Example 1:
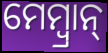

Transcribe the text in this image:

ମେମ୍ବ୍ରାନ୍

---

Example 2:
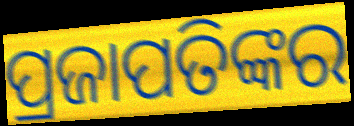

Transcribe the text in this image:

ପ୍ରଜାପତିଙ୍କର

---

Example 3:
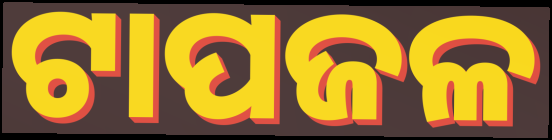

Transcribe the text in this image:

ଟାପଜଳ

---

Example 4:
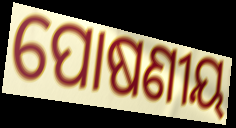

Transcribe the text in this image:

ପୋଷଣୀୟ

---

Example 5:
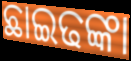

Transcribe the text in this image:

ଛାଇଢଙ୍କା